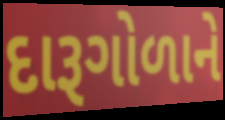
દારૂગોળાને